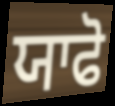
ਯਾਫੋ